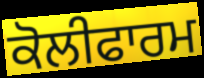
ਕੋਲੀਫਾਰਮ